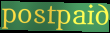
postpaid